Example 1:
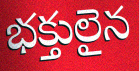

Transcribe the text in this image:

భక్తులైన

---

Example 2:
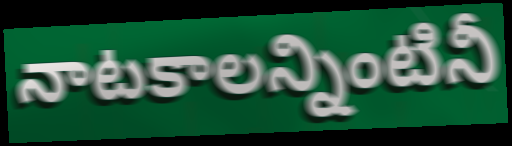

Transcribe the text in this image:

నాటకాలన్నింటినీ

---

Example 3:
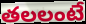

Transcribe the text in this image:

తలలంటే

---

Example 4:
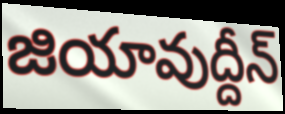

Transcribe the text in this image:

జియావుద్దీన్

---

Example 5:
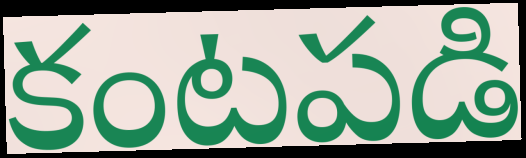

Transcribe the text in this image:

కంటపడి